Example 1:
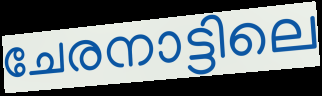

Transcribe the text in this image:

ചേരനാട്ടിലെ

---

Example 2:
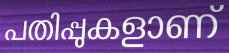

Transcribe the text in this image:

പതിപ്പുകളാണ്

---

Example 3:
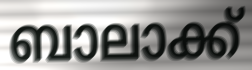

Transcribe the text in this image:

ബാലാക്ക്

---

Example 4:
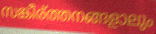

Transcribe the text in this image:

സങ്കീര്ത്തനങ്ങളാലും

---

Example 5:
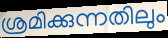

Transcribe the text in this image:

ശ്രമിക്കുന്നതിലും